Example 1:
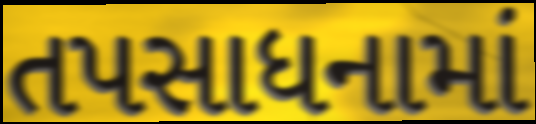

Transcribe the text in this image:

તપસાધનામાં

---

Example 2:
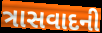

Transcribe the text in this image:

ત્રાસવાદની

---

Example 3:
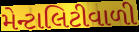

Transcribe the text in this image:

મેન્ટાલિટીવાળી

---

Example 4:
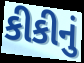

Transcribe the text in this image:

કીકીનું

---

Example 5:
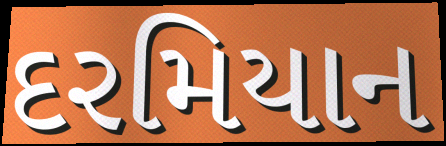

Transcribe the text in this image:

દરમિયાન